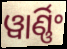
ୱାର୍ଣ୍ଣିଂ